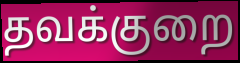
தவக்குறை